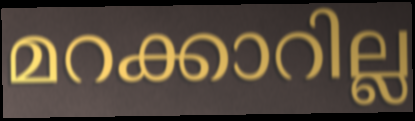
മറക്കാറില്ല